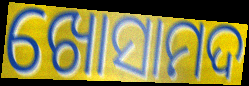
ଖୋସାମଦ